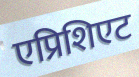
एप्रिशिएट